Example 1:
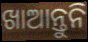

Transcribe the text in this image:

ଖାଆନ୍ତୁନି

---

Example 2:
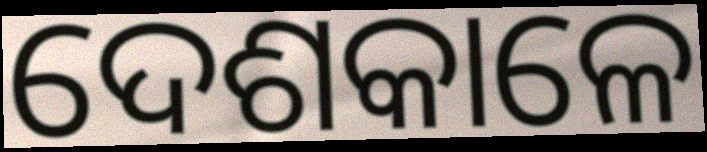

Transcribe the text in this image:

ଦେଶକାଳେ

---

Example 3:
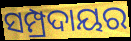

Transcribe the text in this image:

ସମ୍ପ୍ରଦାୟର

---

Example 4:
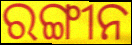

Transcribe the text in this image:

ରଙ୍ଗୀନ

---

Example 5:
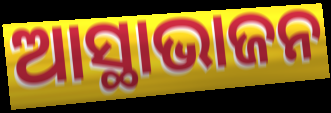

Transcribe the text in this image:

ଆସ୍ଥାଭାଜନ